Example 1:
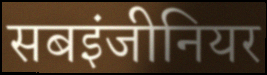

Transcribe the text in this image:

सबइंजीनियर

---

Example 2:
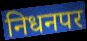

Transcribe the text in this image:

निधनपर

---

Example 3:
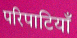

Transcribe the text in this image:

परिपाटियाँ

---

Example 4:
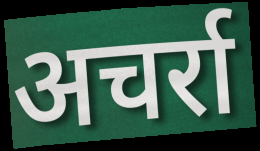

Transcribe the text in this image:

अचर्रा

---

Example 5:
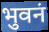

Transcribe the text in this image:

भुवनं